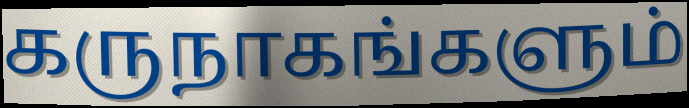
கருநாகங்களும்